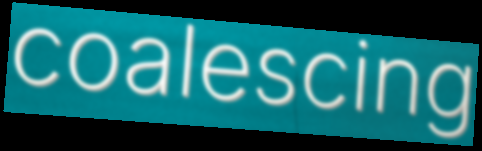
coalescing